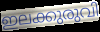
ഇലക്കുരുവി